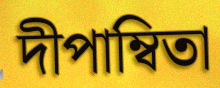
দীপাম্বিতা